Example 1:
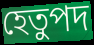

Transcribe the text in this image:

হেতুপদ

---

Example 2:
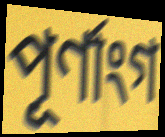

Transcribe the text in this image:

পূৰ্ণাংগ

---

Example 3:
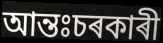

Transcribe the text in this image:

আন্তঃচৰকাৰী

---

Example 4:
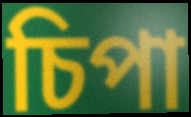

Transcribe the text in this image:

চিপা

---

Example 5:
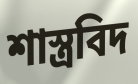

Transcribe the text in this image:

শাস্ত্ৰবিদ